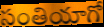
సంతియాగో